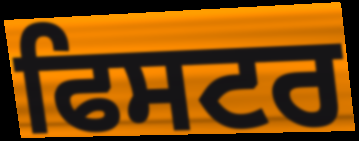
ਫਿਸਟਰ